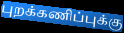
புறக்கணிப்புக்கு